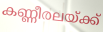
കണ്ണീരലയ്ക്ക്